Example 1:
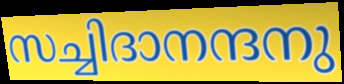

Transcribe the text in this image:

സച്ചിദാനന്ദനു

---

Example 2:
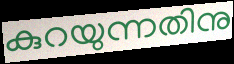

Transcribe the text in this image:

കുറയുന്നതിനു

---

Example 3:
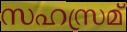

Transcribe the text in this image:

സഹസ്രമ്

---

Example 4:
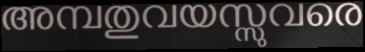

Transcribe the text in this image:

അമ്പതുവയസ്സുവരെ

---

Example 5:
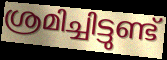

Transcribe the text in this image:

ശ്രമിച്ചിട്ടുണ്ട്